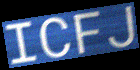
ICFJ